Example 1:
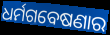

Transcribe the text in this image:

ଧର୍ମଗବେଷଣାର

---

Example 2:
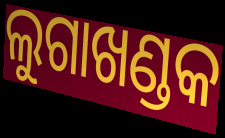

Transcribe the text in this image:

ଲୁଗାଖଣ୍ଡକ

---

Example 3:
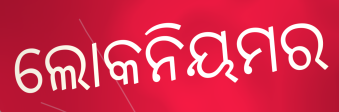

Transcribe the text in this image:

ଲୋକନିୟମର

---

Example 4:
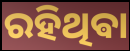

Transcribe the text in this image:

ରହିଥିଵା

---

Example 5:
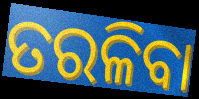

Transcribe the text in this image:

ତରଳିବା